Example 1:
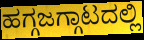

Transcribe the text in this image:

ಹಗ್ಗಜಗ್ಗಾಟದಲ್ಲಿ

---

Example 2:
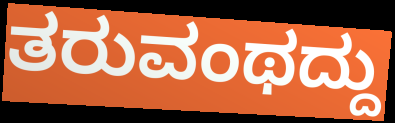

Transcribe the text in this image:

ತರುವಂಥದ್ದು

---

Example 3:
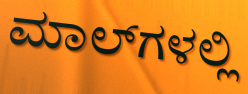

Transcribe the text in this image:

ಮಾಲ್‌ಗಳಲ್ಲಿ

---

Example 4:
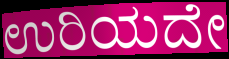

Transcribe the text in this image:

ಉರಿಯದೇ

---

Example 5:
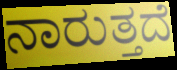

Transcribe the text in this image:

ನಾರುತ್ತದೆ